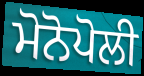
ਮੋਨੋਪੋਲੀ